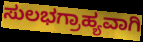
ಸುಲಭಗ್ರಾಹ್ಯವಾಗಿ